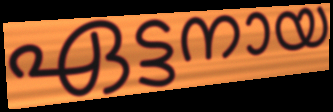
ഏട്ടനായ